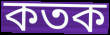
কতক